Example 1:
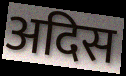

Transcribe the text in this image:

अदिस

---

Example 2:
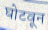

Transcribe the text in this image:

घोटवून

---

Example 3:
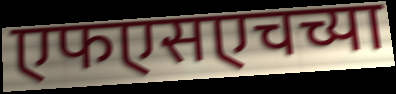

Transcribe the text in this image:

एफएसएचच्या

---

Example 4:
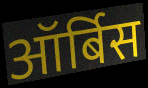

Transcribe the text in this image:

ऑर्बिस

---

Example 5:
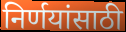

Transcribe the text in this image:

निर्णयांसाठी